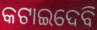
କଟାଇଦେବି